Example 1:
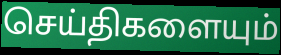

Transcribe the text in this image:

செய்திகளையும்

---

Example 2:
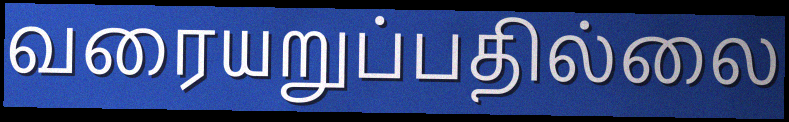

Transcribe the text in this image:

வரையறுப்பதில்லை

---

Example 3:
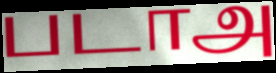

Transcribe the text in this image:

படாஅ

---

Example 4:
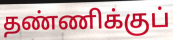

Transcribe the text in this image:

தண்ணிக்குப்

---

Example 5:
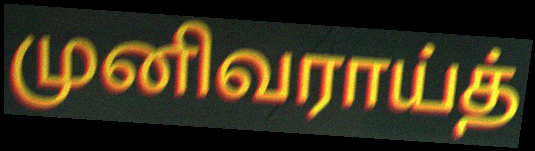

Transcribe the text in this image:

முனிவராய்த்